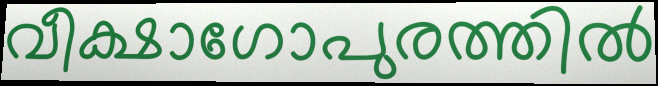
വീക്ഷാഗോപുരത്തിൽ